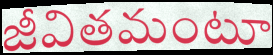
జీవితమంటూ